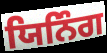
ਯਿਨਿੰਗ